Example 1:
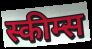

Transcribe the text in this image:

स्कीम्स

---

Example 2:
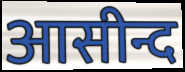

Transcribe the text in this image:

आसीन्द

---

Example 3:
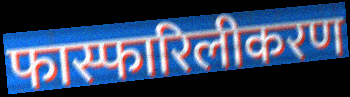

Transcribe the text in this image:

फास्फारिलीकरण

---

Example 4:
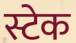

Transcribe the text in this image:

स्टेक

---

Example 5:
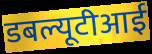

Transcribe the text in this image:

डबल्यूटीआई